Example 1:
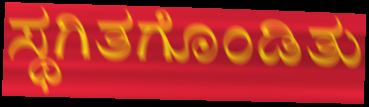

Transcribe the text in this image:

ಸ್ಥಗಿತಗೊಂಡಿತು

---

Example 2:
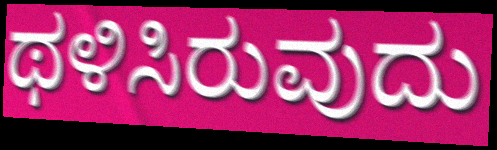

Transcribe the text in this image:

ಥಳಿಸಿರುವುದು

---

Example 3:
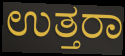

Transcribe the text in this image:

ಉತ್ತರಾ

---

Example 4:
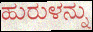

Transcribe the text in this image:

ಹುರುಳನ್ನು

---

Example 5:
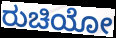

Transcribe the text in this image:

ರುಚಿಯೋ